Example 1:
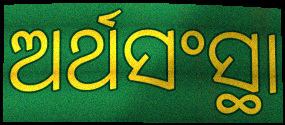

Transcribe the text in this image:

ଅର୍ଥସଂସ୍ଥା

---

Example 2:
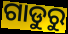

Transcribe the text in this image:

ଗାଡୁରୁ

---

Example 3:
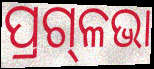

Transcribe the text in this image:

ପ୍ରଗ୍‌ଳଭା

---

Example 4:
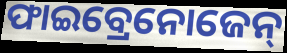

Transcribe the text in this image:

ଫାଇବ୍ରେନୋଜେନ୍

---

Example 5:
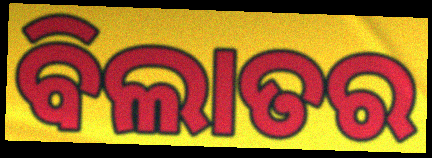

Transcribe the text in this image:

ବିଲାତର